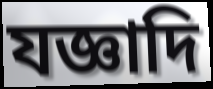
যজ্ঞাদি